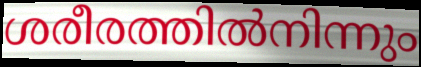
ശരീരത്തിൽനിന്നും